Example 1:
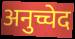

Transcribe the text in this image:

अनुच्चेद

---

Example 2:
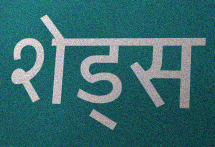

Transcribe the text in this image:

शेड्स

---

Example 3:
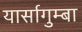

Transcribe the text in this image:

यार्सागुम्बा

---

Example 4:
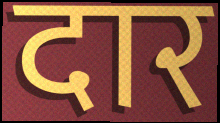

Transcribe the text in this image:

दार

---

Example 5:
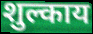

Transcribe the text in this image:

शुल्काय